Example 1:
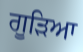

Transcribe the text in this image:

ਗੂੜਿਆ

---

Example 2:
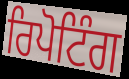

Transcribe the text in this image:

ਰਿਪੋਟਿੰਗ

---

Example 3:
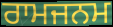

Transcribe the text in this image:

ਰਾਮਜਨਮ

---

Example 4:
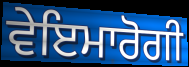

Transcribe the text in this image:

ਵੇਇਮਾਰੋਗੀ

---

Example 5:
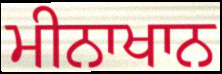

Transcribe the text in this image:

ਮੀਨਾਖਾਨ